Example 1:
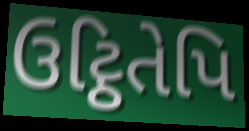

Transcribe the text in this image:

ઉટ્ઠિતેપિ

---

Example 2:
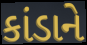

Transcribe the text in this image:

કાંડાને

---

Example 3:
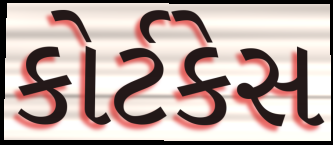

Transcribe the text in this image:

કોર્ટકેસ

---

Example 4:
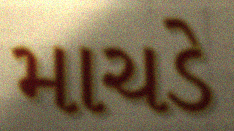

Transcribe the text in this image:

માચડે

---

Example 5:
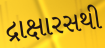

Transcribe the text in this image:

દ્રાક્ષારસથી